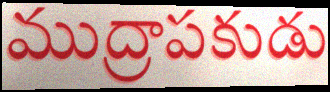
ముద్రాపకుడు